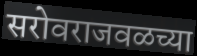
सरोवराजवळच्या